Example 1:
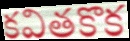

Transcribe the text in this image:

కవితకొక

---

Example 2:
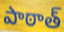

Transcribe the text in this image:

పాఠాత్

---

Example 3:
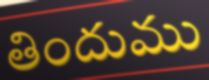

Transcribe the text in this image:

తిందుము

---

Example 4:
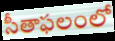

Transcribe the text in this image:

సీతాఫలంలో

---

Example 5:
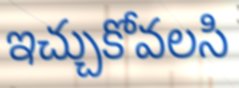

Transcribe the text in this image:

ఇచ్చుకోవలసి